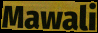
Mawali